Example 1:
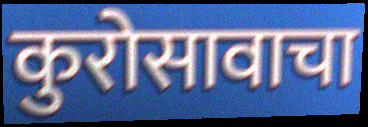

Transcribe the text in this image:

कुरोसावाचा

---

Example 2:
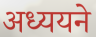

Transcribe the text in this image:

अध्ययने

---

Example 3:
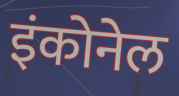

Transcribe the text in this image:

इंकोनेल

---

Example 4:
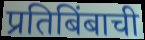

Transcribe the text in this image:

प्रतिबिंबाची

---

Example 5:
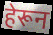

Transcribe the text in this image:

हेरून